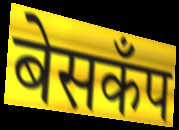
बेसकँप